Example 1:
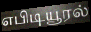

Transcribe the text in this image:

எபிடியூரல்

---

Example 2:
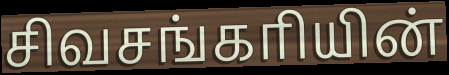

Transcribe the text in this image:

சிவசங்கரியின்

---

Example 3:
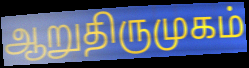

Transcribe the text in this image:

ஆறுதிருமுகம்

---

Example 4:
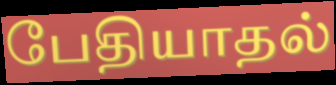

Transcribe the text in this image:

பேதியாதல்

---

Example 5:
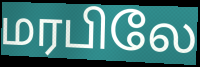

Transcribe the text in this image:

மரபிலே